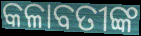
କଳାବତୀଙ୍କ